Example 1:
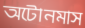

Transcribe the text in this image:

অটোনমাস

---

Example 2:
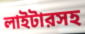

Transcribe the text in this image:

লাইটারসহ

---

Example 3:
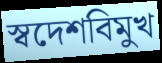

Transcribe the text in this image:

স্বদেশবিমুখ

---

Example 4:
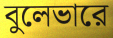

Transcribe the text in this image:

বুলেভারে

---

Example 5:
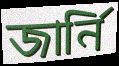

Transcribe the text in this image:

জার্নি